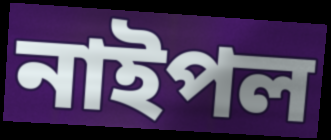
নাইপল